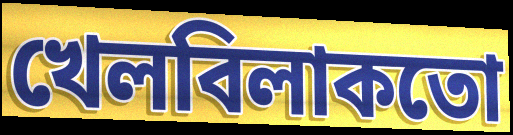
খেলবিলাকতো